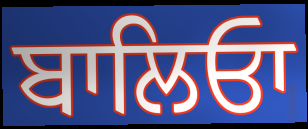
ਬਾਲਿਓਾ